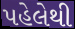
પહેલેથી